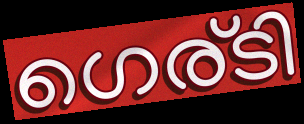
ഗെര്ടി